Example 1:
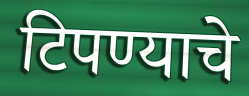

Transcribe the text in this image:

टिपण्याचे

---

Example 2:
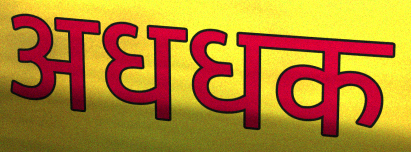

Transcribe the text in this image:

अधधक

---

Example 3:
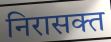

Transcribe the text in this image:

निरासक्त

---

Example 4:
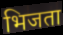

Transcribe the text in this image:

भिजता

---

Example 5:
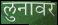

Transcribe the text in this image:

लुनावर